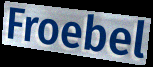
Froebel